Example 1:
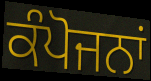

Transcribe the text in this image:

ਕੰਪੋਜਨਾਂ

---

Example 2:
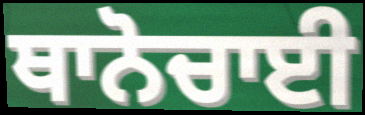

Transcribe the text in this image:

ਥਾਨੋਚਾਈ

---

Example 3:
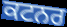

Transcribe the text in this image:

ਕਟਨਰ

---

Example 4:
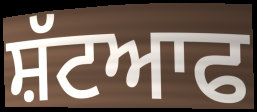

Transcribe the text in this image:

ਸ਼ੱਟਆਫ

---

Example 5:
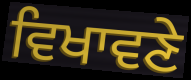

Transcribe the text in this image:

ਵਿਖਾਵਣੇ